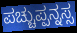
ಪಚ್ಚುಪ್ಪನ್ನಸ್ಸ